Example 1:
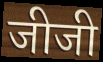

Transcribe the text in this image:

जीजी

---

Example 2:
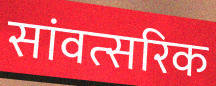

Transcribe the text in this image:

सांवत्सरिक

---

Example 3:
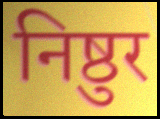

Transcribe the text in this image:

निष्ठुर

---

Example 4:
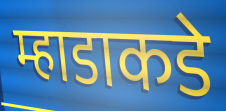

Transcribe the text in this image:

म्हाडाकडे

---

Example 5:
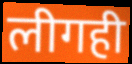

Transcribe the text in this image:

लीगही